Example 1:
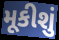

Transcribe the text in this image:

મૂકીશું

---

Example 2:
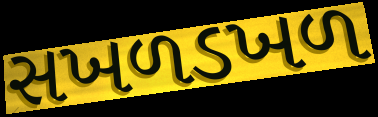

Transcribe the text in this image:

સખળડખળ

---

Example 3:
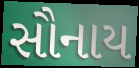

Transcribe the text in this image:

સૌનાય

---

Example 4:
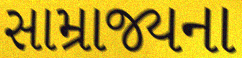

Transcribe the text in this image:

સામ્રાજ્યના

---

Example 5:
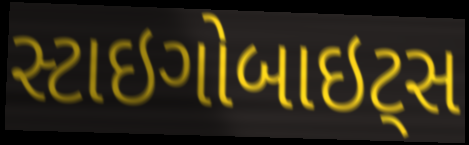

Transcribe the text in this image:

સ્ટાઇગોબાઇટ્સ